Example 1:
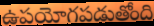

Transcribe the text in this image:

ఉపయోగపడుతోంది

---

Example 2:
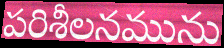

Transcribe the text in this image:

పరిశీలనమును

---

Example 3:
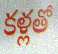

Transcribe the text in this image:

కళ్లతో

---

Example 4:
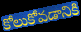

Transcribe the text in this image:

కోలుకోవడానికి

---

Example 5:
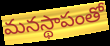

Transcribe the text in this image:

మనస్థాపంతో